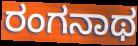
ರಂಗನಾಥ